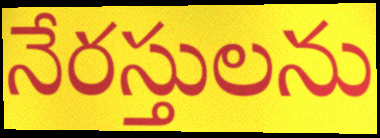
నేరస్తులను